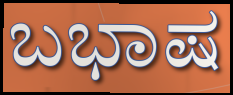
ಬಭಾಷ